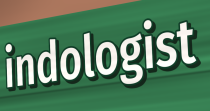
indologist